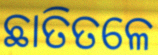
ଛାତିତଳେ